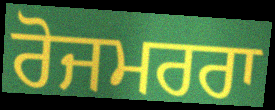
ਰੋਜਮਰਰਾ